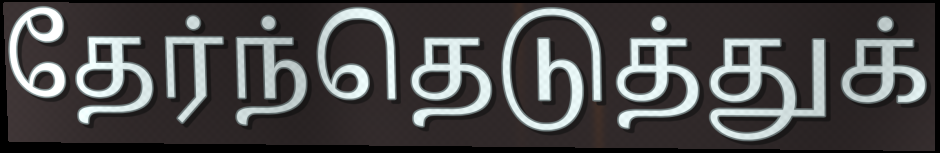
தேர்ந்தெடுத்துக்